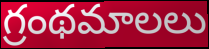
గ్రంథమాలలు